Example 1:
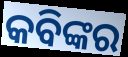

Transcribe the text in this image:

କବିଙ୍କର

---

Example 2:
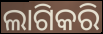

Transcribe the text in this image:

ଲାଗିକରି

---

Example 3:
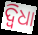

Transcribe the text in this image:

ଦ୍ୱିଧା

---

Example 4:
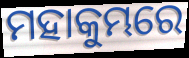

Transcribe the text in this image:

ମହାକୁମ୍ଭରେ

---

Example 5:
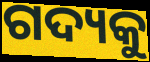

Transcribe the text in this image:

ଗଦ୍ୟକୁ